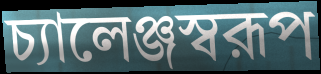
চ্যালেঞ্জস্বরূপ